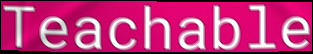
Teachable